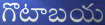
గొటాబయ